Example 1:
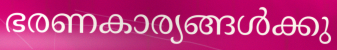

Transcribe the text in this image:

ഭരണകാര്യങ്ങൾക്കു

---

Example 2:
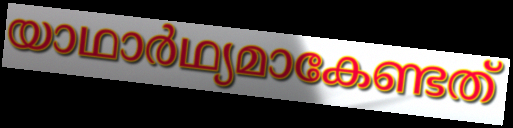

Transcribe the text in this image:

യാഥാർഥ്യമാകേണ്ടത്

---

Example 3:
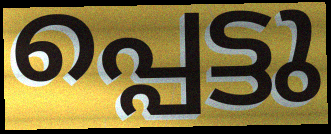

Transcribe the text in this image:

പ്പെട്ടു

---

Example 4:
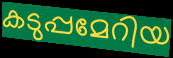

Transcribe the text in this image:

കടുപ്പമേറിയ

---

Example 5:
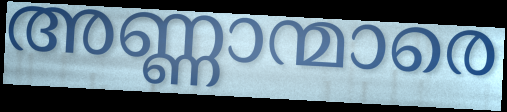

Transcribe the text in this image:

അണ്ണാന്മാരെ